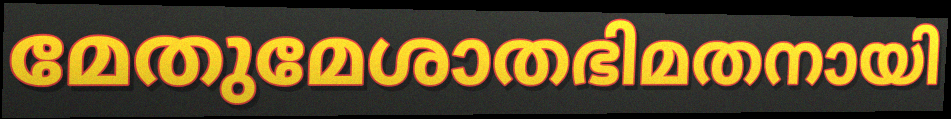
മേതുമേശാതഭിമതനായി